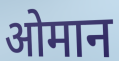
ओमान